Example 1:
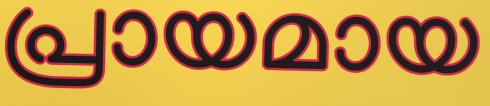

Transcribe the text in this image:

പ്രായമായ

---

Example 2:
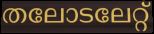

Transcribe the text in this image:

തലോടലേറ്റ്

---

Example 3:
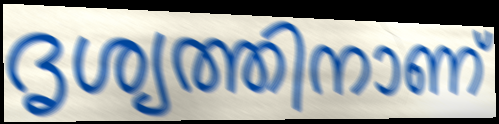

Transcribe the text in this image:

ദൃശ്യത്തിനാണ്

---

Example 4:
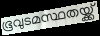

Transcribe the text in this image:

ഭൂവുടമസ്ഥതയ്ക്ക്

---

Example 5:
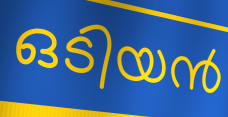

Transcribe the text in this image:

ഒടിയൻ